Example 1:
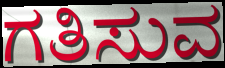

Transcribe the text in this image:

ಗತಿಸುವ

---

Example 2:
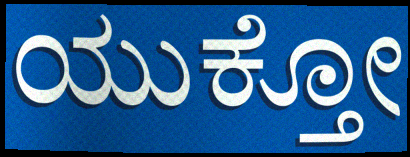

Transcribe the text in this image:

ಯುಕ್ತೋ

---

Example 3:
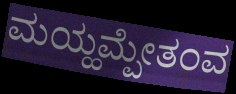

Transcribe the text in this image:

ಮಯ್ಹಮ್ಪೇತಂವ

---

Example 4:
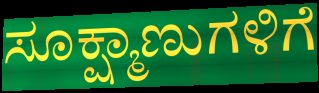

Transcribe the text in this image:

ಸೂಕ್ಷ್ಮಾಣುಗಳಿಗೆ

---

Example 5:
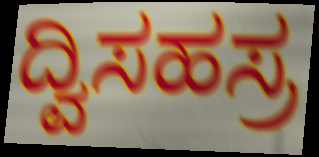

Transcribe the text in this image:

ದ್ವಿಸಹಸ್ರ